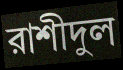
রাশীদুল